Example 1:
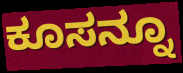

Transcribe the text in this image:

ಕೂಸನ್ನೂ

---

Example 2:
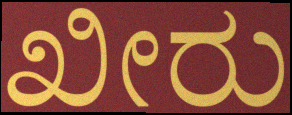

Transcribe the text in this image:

ಖೀರು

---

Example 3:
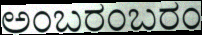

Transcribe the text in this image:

ಅಂಬರಂಬರಂ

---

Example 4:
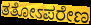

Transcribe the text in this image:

ತತೋಽಪರೇಣ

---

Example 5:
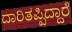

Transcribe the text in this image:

ದಾರಿತಪ್ಪಿದ್ದಾರೆ